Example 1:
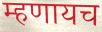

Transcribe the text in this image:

म्हणायच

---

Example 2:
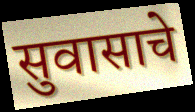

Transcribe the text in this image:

सुवासाचे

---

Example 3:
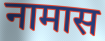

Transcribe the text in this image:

नामास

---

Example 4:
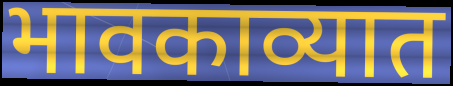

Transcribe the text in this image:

भावकाव्यात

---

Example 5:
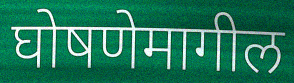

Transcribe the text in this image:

घोषणेमागील